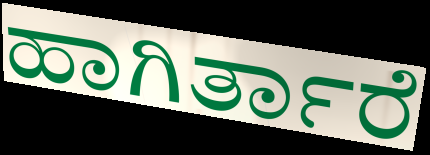
ಹಾಗಿರ್ತಾರೆ